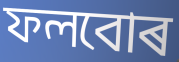
ফলবোৰ